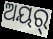
ଅୟର୍